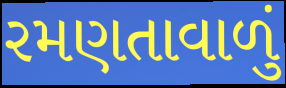
રમણતાવાળું